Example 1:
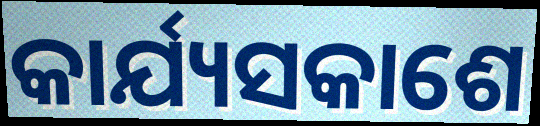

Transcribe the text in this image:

କାର୍ଯ୍ୟସକାଶେ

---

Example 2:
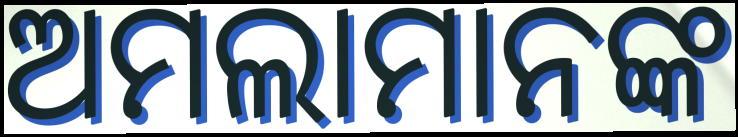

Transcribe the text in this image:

ଅମଲାମାନଙ୍କ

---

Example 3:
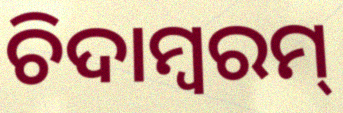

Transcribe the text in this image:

ଚିଦାମ୍ବରମ୍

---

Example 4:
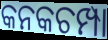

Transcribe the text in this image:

କନକଚମ୍ପା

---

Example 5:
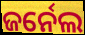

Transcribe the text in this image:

ଜର୍ନେଲ